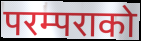
परम्पराको